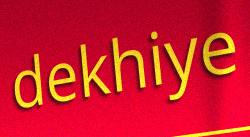
dekhiye